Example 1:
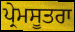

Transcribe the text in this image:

ਪ੍ਰੇਮਸੂਤਰਾ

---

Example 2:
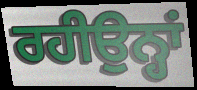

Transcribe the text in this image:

ਰਹੀਉਨ੍ਹਾਂ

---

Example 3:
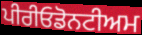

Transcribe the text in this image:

ਪੀਰੀਓਡੋਨਟੀਅਮ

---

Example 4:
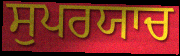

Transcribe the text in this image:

ਸੁਪਰਯਾਚ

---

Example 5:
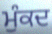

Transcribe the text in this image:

ਮੁੰਕਦ